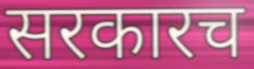
सरकारच